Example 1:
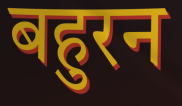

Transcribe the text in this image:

बहुरन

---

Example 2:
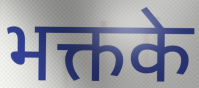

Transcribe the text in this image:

भक्तके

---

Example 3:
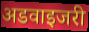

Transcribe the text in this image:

अडवाइजरी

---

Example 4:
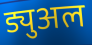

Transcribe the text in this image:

ड्युअल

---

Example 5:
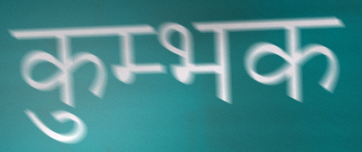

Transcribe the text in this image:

कुम्भक